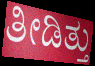
ತೀಡಿತ್ತು